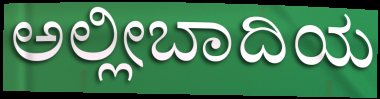
ಅಲ್ಲೀಬಾದಿಯ